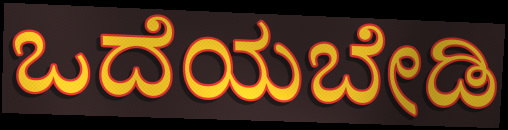
ಒದೆಯಬೇಡಿ